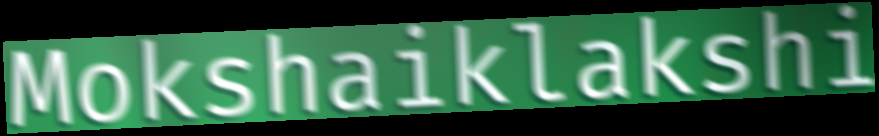
Mokshaiklakshi